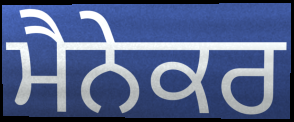
ਮੈਨੇਕਰ